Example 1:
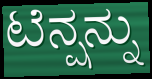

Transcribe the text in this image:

ಟೆನ್ಷನ್ನು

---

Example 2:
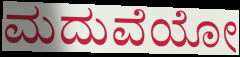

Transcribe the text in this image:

ಮದುವೆಯೋ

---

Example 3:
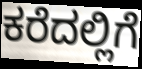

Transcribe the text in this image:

ಕರೆದಲ್ಲಿಗೆ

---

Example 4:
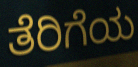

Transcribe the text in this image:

ತೆರಿಗೆಯ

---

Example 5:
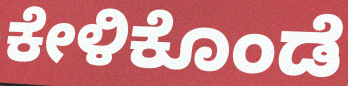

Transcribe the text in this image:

ಕೇಳಿಕೊಂಡೆ